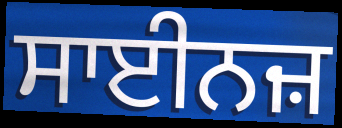
ਸਾਈਨਜ਼